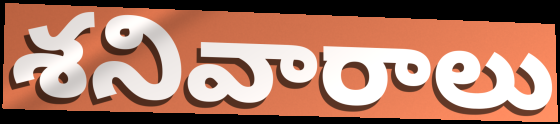
శనివారాలు